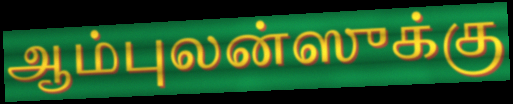
ஆம்புலன்ஸுக்கு